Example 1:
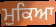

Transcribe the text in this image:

ਮੁਕਿਆ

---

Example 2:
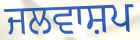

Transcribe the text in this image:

ਜਲਵਾਸ਼ਪ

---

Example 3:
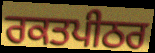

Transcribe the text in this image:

ਰਕਤਪੀਠਰ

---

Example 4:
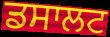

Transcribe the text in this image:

ਡਸਾਲਟ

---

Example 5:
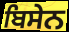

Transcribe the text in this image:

ਬਿਸੇਨ